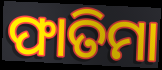
ଫାତିମା